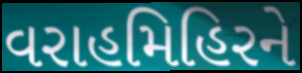
વરાહમિહિરને